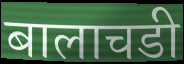
बालाचडी